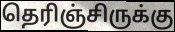
தெரிஞ்சிருக்கு